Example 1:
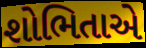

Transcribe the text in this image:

શોભિતાએ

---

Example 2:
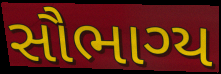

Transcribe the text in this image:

સૌભાગ્ય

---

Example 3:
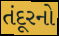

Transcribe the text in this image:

તંદૂરનો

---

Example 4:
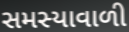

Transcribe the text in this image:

સમસ્યાવાળી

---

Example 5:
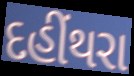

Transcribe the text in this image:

દહીંથરા